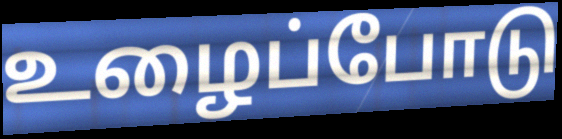
உழைப்போடு